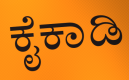
ಕೈಕಾಡಿ